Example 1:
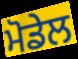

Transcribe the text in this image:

ਮੋਡੇਲ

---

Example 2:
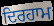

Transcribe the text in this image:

ਦਿਰਹਾਮ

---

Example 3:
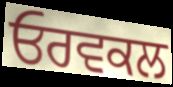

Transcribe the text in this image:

ਓਰਵਕਲ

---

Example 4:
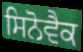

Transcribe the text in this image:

ਸਿਨੋਵੈਕ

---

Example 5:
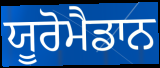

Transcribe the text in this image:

ਯੂਰੋਮੈਡਾਨ